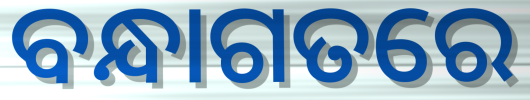
ବନ୍ଧାଗତରେ